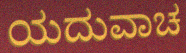
ಯದುವಾಚ